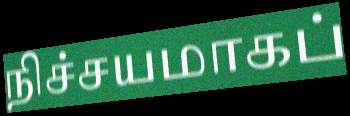
நிச்சயமாகப்